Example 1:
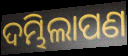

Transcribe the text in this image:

ଦମ୍ଭିଲାପଣ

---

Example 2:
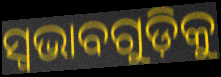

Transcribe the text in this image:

ସ୍ୱଭାବଗୁଡ଼ିକୁ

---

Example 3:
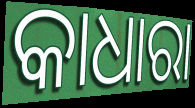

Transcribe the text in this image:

କାଧାରା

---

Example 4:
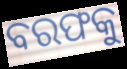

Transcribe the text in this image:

ବରଫକୁ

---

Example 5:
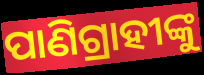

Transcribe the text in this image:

ପାଣିଗ୍ରାହୀଙ୍କୁ